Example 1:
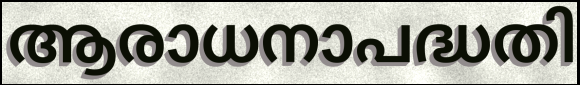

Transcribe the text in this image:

ആരാധനാപദ്ധതി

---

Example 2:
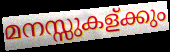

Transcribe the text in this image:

മനസ്സുകള്ക്കും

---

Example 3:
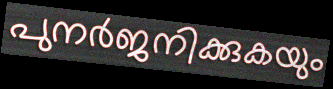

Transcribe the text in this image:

പുനർജനിക്കുകയും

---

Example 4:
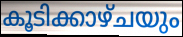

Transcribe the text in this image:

കൂടിക്കാഴ്ചയും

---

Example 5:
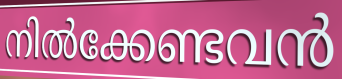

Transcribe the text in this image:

നിൽക്കേണ്ടവൻ